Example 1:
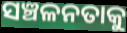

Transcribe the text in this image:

ସଞ୍ଚଳନତାକୁ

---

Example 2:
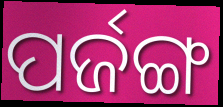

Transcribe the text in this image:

ପର୍ଜଙ୍ଗ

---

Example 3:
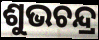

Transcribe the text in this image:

ଶୁଭଚନ୍ଦ୍ର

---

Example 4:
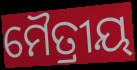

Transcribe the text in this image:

ମୈତ୍ରୀୟ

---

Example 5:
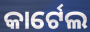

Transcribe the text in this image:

କାର୍ଟେଲ